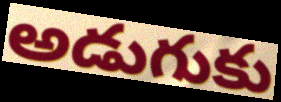
అడుగుకు